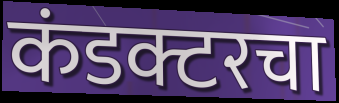
कंडक्टरचा